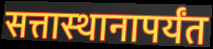
सत्तास्थानापर्यंत